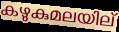
കഴുകുമലയില്